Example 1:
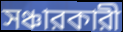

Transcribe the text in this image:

সঞ্চারকারী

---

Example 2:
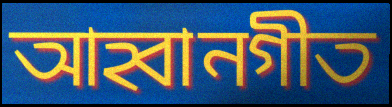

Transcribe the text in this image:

আহ্বানগীত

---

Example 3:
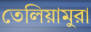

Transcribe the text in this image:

তেলিয়ামুরা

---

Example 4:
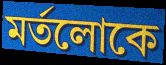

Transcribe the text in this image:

মর্তলোকে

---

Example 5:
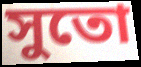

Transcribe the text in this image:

সুতো